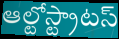
ఆల్టోస్ట్రాటస్